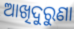
ଆଖିଦୁରୁଣା